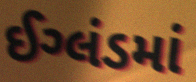
ઈગ્લંડમાં